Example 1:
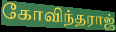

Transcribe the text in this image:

கோவிந்தராஜ்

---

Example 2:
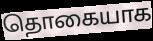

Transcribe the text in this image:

தொகையாக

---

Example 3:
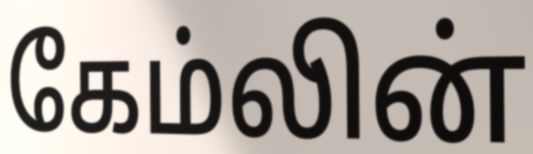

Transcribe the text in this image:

கேம்லின்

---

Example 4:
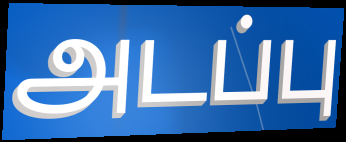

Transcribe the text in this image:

அடப்பு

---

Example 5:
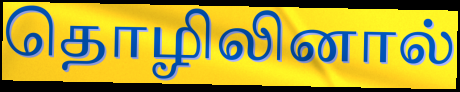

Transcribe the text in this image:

தொழிலினால்